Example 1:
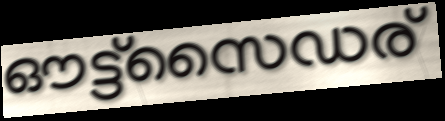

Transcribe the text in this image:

ഔട്ട്സൈഡര്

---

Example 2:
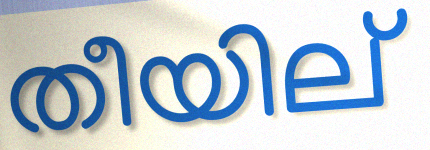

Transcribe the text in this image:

തീയില്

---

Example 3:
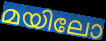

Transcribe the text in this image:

മയിലോ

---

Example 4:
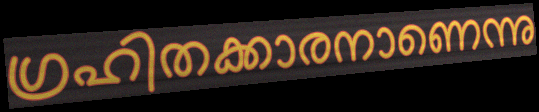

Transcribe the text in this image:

ഗ്രഹിതക്കാരനാണെന്നു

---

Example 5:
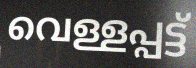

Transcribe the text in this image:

വെള്ളപ്പട്ട്